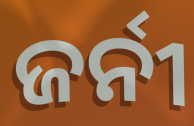
ଜର୍ନୀ